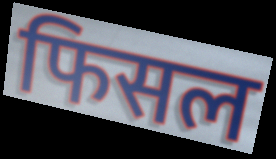
फिसल